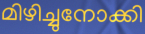
മിഴിച്ചുനോക്കി